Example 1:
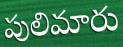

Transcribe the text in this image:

పులిమారు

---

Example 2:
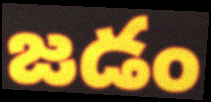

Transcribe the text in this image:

జడం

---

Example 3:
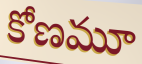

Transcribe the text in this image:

కోణమూ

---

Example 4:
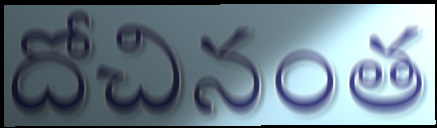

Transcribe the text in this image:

దోచినంత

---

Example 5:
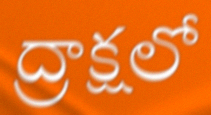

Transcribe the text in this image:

ద్రాక్షలో